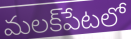
మలక్‌పేటలో